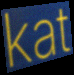
kat